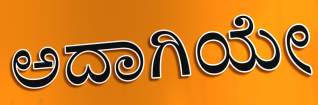
ಅದಾಗಿಯೇ